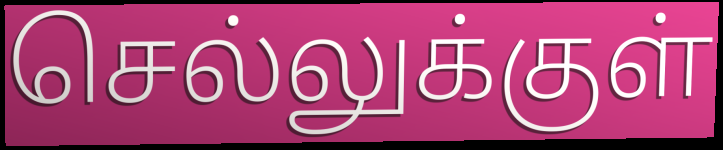
செல்லுக்குள்